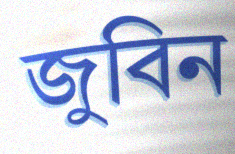
জুবিন